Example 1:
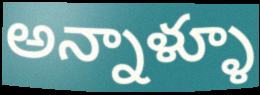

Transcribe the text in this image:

అన్నాళ్ళూ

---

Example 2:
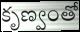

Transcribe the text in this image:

కృణ్వంతో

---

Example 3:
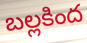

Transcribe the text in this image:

బల్లకింద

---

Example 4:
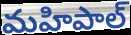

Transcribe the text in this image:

మహిపాల్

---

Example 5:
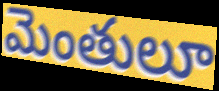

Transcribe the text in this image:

మెంతులూ